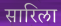
सारिला